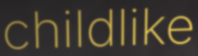
childlike